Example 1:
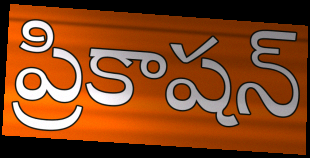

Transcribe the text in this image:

ప్రికాషన్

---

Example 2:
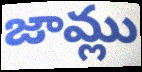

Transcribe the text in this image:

జామ్లు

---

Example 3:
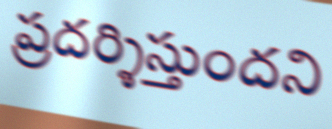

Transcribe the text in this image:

ప్రదర్శిస్తుందని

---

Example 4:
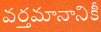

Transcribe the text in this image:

వర్తమానానికీ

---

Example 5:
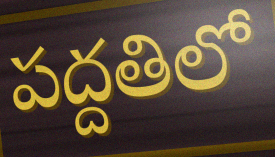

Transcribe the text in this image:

పద్దతిలో